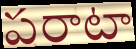
పరాటా